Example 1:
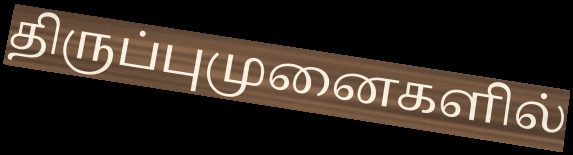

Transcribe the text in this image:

திருப்புமுனைகளில்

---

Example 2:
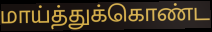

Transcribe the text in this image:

மாய்த்துக்கொண்ட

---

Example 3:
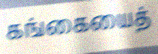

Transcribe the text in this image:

கங்கையைத்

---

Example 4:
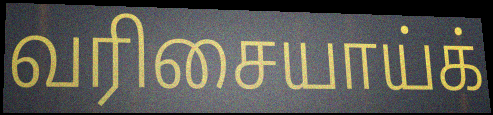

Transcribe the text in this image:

வரிசையாய்க்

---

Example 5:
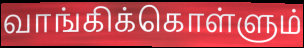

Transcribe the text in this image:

வாங்கிக்கொள்ளும்